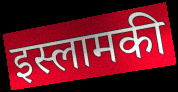
इस्लामकी